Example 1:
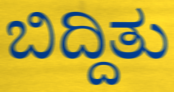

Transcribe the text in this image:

ಬಿದ್ದಿತು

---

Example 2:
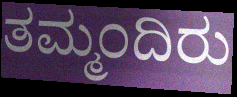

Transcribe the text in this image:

ತಮ್ಮಂದಿರು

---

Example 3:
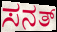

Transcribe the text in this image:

ಸನತ್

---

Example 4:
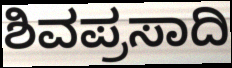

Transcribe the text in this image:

ಶಿವಪ್ರಸಾದಿ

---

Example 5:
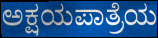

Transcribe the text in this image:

ಅಕ್ಷಯಪಾತ್ರೆಯ